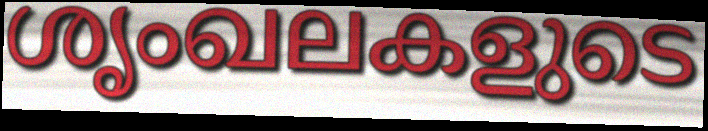
ശൃംഖലകളുടെ